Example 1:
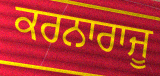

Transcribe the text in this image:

ਕਰਨਾਰਾਜੂ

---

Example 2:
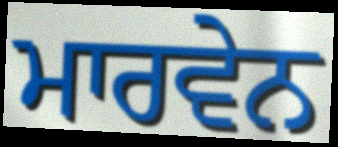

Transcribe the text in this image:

ਮਾਰਵੇਨ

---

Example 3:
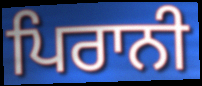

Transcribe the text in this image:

ਪਿਰਾਨੀ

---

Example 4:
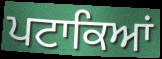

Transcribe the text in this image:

ਪਟਾਕਿਆਂ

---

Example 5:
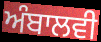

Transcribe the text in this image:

ਅੰਬਾਲਵੀ